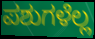
ಪಶುಗಳೆಲ್ಲ